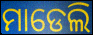
ମାଡେଲି